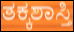
ತಕ್ಕಶಾಸ್ತಿ